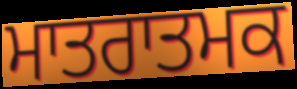
ਮਾਤਰਾਤਮਕ